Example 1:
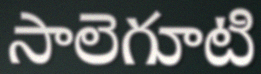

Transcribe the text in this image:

సాలెగూటి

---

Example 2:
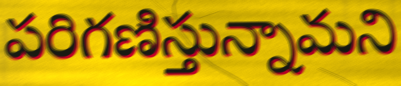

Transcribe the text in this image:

పరిగణిస్తున్నామని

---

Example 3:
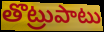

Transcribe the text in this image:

తొట్రుపాటు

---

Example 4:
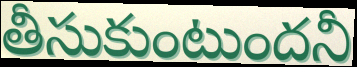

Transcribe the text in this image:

తీసుకుంటుందనీ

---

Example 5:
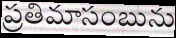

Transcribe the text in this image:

ప్రతిమాసంబును